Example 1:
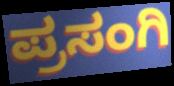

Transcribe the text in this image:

ಪ್ರಸಂಗಿ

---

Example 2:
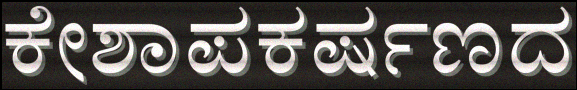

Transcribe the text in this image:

ಕೇಶಾಪಕರ್ಷಣದ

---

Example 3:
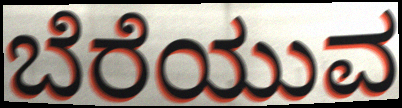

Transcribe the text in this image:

ಬೆರೆಯುವ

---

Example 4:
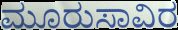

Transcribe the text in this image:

ಮೂರುಸಾವಿರ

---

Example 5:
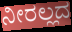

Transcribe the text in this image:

ನೀರಲ್ಲದ